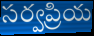
సర్వప్రియ